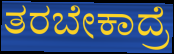
ತರಬೇಕಾದ್ರೆ